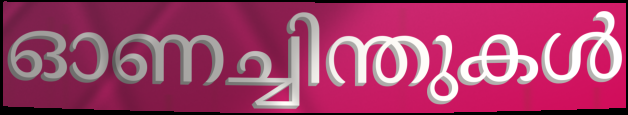
ഓണച്ചിന്തുകൾ